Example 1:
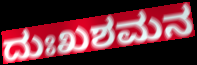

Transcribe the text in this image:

ದುಃಖಶಮನ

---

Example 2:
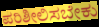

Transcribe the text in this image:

ಪರಿಶೀಲಿಸಬೇಕು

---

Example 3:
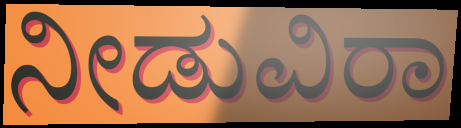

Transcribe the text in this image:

ನೀಡುವಿರಾ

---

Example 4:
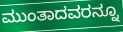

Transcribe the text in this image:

ಮುಂತಾದವರನ್ನೂ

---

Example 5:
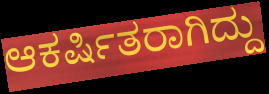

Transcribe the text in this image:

ಆಕರ್ಷಿತರಾಗಿದ್ದು